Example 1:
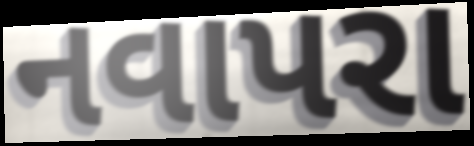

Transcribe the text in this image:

નવાપરા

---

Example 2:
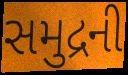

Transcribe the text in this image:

સમુદ્રની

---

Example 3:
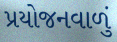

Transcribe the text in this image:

પ્રયોજનવાળું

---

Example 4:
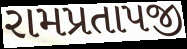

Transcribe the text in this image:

રામપ્રતાપજી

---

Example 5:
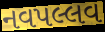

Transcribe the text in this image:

નવપલ્લવ